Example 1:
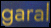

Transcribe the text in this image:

garal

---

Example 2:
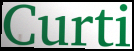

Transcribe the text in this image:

Curti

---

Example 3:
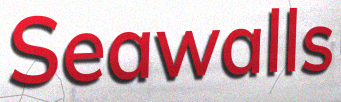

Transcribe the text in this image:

Seawalls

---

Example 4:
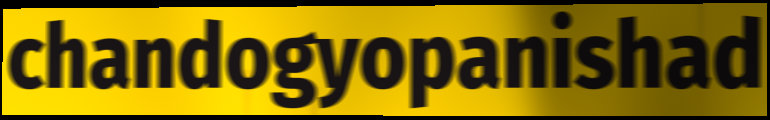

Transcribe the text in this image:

chandogyopanishad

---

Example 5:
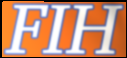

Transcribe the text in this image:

FIH